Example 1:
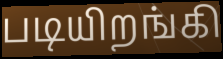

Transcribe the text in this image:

படியிறங்கி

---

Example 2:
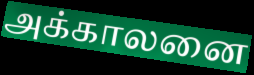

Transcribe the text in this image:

அக்காலனை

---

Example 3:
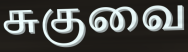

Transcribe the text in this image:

சுகுவை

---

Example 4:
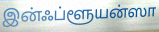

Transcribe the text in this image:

இன்ஃப்ளூயன்ஸா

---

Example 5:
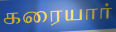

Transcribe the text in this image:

கரையார்